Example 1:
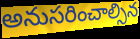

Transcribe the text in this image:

అనుసరించాల్సిన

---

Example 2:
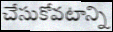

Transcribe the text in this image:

చేసుకోవటాన్ని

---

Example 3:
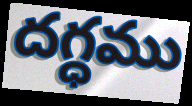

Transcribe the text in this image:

దగ్ధము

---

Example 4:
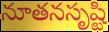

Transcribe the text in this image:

నూతనసృష్టి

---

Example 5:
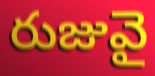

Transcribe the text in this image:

రుజువై